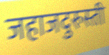
जहाजदुरुस्ती